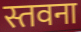
स्तवना